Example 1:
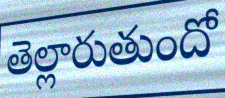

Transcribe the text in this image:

తెల్లారుతుందో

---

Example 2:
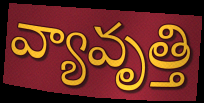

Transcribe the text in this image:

వ్యావృత్తి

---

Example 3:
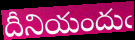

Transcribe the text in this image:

దీనియందుఁ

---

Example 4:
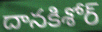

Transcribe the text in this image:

దానకిశోర్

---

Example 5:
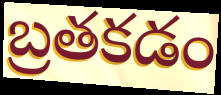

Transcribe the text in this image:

బ్రతకడం